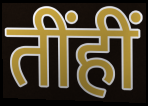
तींहीं